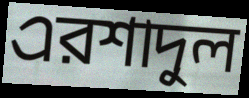
এরশাদুল